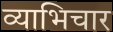
व्याभिचार